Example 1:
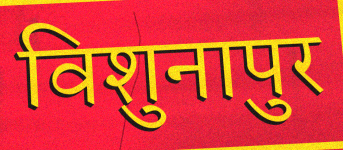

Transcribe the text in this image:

विशुनापुर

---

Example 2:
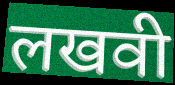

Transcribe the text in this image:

लखवी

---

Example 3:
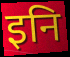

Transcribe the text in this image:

इनि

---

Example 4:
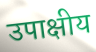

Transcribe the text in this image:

उपाक्षीय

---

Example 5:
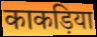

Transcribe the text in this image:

काकड़िया